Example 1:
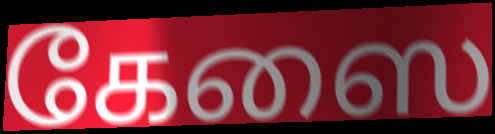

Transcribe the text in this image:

கேஸை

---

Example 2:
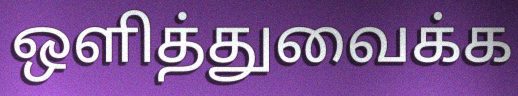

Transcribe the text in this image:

ஒளித்துவைக்க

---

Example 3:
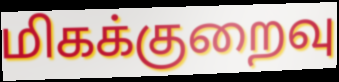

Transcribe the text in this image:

மிகக்குறைவு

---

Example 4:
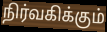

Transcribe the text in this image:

நிர்வகிக்கும்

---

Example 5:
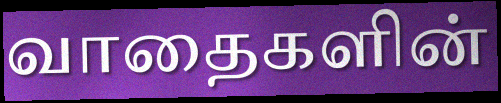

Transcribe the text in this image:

வாதைகளின்